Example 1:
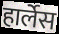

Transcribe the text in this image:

हार्लेस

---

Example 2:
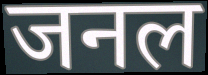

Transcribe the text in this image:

जनल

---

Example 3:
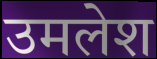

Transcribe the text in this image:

उमलेश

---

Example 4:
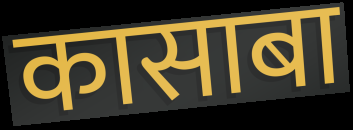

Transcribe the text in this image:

कासाबा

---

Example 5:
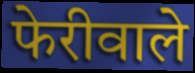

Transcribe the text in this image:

फेरीवाले